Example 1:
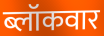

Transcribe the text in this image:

ब्लॉकवार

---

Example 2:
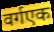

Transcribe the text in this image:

वर्गएक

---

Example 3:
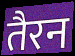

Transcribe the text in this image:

तैरन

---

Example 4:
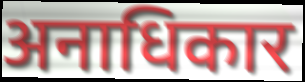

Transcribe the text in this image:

अनाधिकार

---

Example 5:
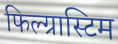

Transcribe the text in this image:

फिल्ग्रास्टिम